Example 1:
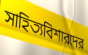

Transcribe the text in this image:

সাহিত্যবিশারদের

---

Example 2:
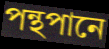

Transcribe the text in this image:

পন্থপানে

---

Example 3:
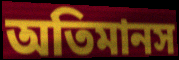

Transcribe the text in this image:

অতিমানস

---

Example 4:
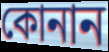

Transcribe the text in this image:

কোনান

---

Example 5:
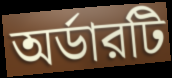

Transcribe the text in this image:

অর্ডারটি